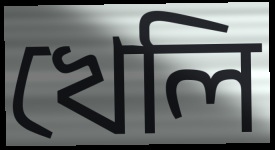
খেলি